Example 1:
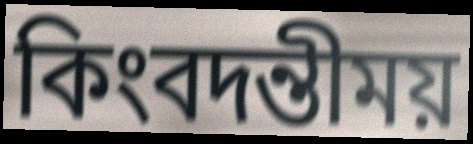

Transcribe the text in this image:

কিংবদন্তীময়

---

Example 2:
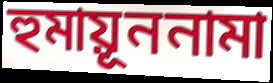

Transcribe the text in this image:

হুমায়ূননামা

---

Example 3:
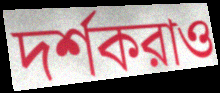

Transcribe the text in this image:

দর্শকরাও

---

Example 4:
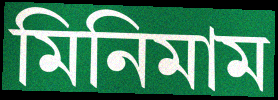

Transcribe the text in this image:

মিনিমাম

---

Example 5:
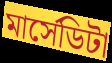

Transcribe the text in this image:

মার্সেডিটা